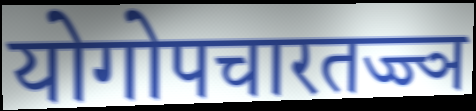
योगोपचारतज्ज्ञ